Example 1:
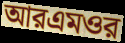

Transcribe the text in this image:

আরএমওর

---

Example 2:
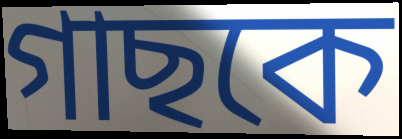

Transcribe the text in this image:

গাছকে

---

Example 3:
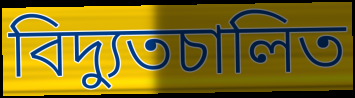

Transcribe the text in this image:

বিদ্যুতচালিত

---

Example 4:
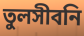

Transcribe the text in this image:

তুলসীবনি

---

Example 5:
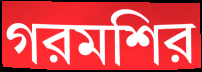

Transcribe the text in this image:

গরমশির